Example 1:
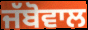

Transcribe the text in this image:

ਜੱਬੋਵਾਲ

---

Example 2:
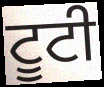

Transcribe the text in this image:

ਟੂਟੀ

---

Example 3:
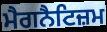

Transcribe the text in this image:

ਮੈਗਨੈਟਿਜ਼ਮ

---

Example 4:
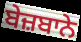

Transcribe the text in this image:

ਬੇਜ਼ਬਾਨੇ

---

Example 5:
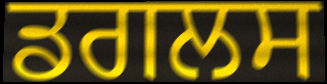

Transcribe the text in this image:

ਡਗਲਸ